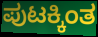
ಪುಟಕ್ಕಿಂತ